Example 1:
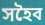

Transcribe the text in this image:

সহৈব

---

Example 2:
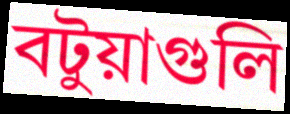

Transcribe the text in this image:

বটুয়াগুলি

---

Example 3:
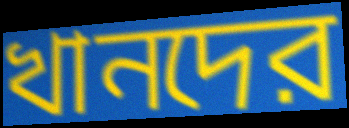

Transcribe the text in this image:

খানদের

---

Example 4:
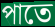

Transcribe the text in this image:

পাতে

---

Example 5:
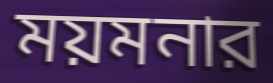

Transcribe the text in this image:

ময়মনার